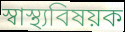
স্বাস্থ্যবিষয়ক